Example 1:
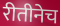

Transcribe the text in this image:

रीतीनेच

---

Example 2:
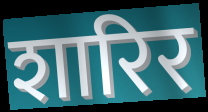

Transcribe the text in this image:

शारिर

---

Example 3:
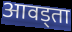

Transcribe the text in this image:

आवड्ता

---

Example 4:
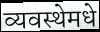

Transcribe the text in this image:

व्यवस्थेमधे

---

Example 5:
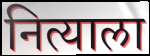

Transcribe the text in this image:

नित्याला